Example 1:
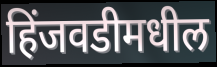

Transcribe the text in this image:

हिंजवडीमधील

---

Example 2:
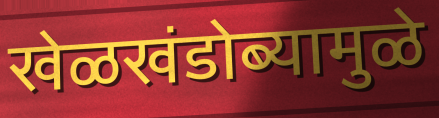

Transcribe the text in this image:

खेळखंडोब्यामुळे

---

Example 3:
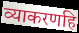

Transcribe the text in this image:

व्याकरणहि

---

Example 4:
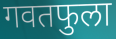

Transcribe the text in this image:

गवतफुला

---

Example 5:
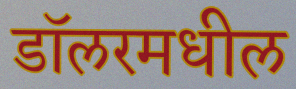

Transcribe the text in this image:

डॉलरमधील